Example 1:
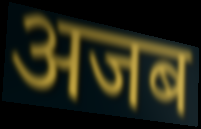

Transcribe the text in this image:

अजब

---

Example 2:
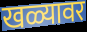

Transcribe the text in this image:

खळ्यावर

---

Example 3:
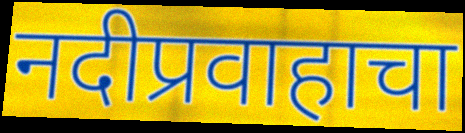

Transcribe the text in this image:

नदीप्रवाहाचा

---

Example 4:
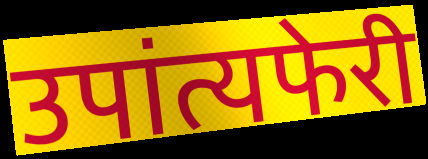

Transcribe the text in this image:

उपांत्यफेरी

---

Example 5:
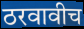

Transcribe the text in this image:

ठरवावीच